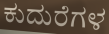
ಕುದುರೆಗಳ